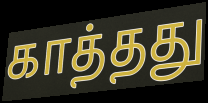
காத்தது